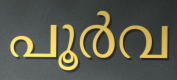
പൂർവ